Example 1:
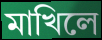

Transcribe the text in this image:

মাখিলে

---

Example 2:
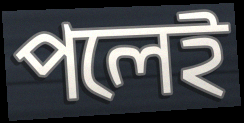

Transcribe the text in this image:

পলেই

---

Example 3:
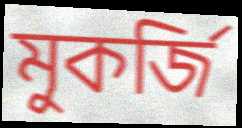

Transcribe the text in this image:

মুকর্জি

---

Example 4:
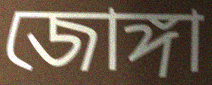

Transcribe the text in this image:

জোঙ্গা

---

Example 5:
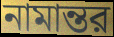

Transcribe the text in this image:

নামান্তর